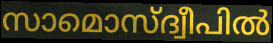
സാമൊസ്ദ്വീപിൽ